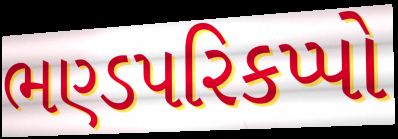
ભણ્ડપરિકપ્પો